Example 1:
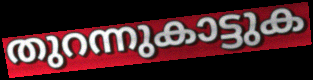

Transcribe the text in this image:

തുറന്നുകാട്ടുക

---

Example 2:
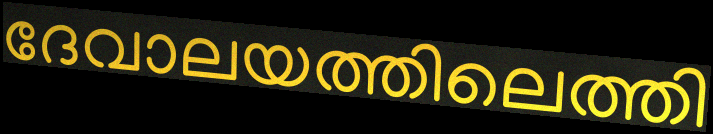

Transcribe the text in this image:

ദേവാലയത്തിലെത്തി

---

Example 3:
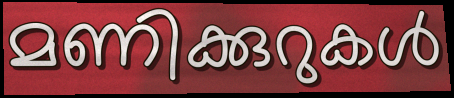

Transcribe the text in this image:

മണിക്കുറുകൾ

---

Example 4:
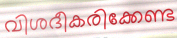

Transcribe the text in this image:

വിശദീകരിക്കേണ്ട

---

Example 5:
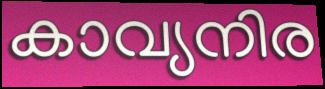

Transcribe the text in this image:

കാവ്യനിര